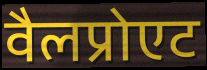
वैलप्रोएट